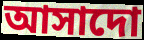
আসাদো